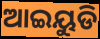
ଆଇୟୁଡି